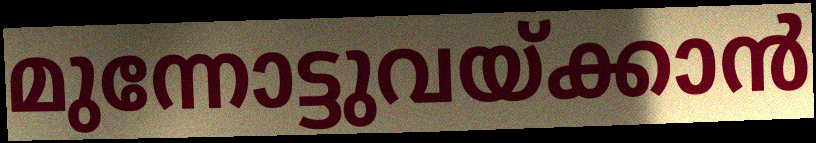
മുന്നോട്ടുവയ്ക്കാൻ